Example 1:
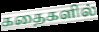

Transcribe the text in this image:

கதைகளில்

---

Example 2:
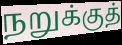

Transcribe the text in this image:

நறுக்குத்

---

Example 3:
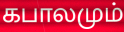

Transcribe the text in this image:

கபாலமும்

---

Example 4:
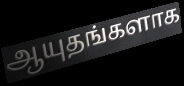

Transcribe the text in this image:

ஆயுதங்களாக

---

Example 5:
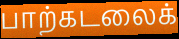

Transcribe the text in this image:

பாற்கடலைக்